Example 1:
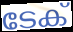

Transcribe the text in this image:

ടേക്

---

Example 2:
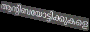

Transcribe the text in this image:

ആന്റിബയോട്ടിക്കുകളെ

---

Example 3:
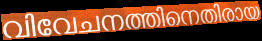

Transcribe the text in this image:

വിവേചനത്തിനെതിരായ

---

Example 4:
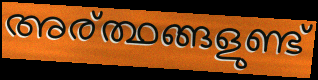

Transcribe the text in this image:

അര്ത്ഥങ്ങളുണ്ട്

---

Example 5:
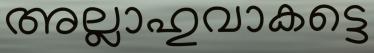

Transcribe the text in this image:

അല്ലാഹുവാകട്ടെ